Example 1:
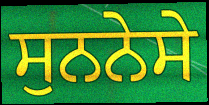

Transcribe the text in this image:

ਸੁਨਨੇਸੇ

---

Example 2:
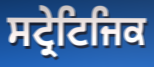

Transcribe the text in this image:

ਸਟ੍ਰੇਟਿਜਿਕ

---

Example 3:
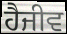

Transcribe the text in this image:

ਹੈਜੀਵ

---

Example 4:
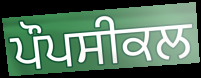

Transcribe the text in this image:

ਪੌਪਸੀਕਲ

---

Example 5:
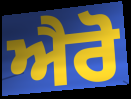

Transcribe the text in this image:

ਐਰੋ